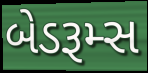
બેડરૂમ્સ